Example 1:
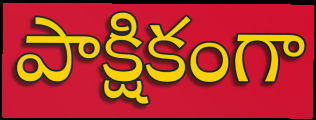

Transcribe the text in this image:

పాక్షికంగా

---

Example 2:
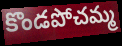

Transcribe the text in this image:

కొండపోచమ్మ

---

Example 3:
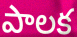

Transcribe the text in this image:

పాలక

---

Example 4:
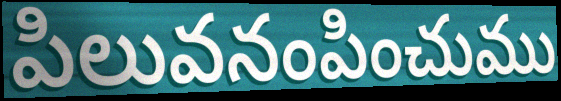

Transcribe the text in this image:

పిలువనంపించుము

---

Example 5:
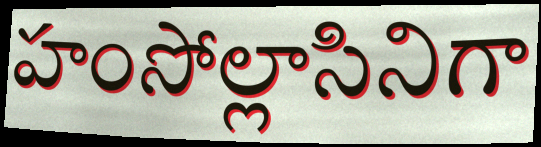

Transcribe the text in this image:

హంసోల్లాసినిగా